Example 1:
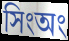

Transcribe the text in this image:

সিংঅং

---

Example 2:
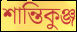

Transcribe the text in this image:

শান্তিকুঞ্জ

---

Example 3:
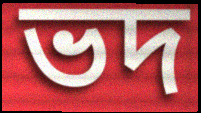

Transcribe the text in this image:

ভদ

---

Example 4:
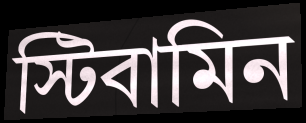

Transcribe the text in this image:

স্টিবামিন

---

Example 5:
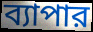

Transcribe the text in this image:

ব্যাপার